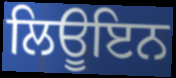
ਲਿਊਇਨ